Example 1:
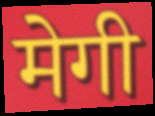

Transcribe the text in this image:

मेगी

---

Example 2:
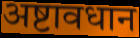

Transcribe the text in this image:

अष्टावधान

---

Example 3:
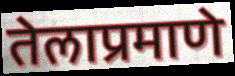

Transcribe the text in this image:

तेलाप्रमाणे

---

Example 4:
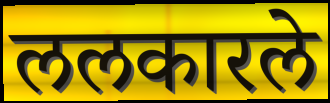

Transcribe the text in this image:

ललकारले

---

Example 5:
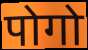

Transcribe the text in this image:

पोगो